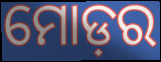
ମୋଡ଼ର